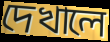
দেখালে